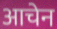
आचेन